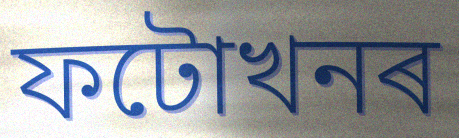
ফটোখনৰ